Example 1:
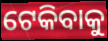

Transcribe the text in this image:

ଟେକିବାକୁ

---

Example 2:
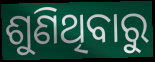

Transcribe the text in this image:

ଶୁଣିଥିବାରୁ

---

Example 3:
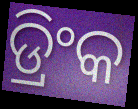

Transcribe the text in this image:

ଡ୍ରିଂକ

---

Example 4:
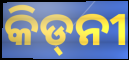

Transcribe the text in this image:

କିଡ୍‌ନୀ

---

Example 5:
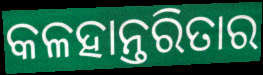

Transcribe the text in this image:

କଳହାନ୍ତରିତାର